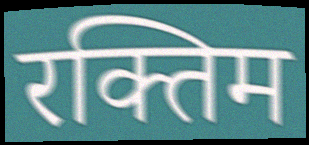
रक्तिम